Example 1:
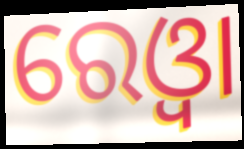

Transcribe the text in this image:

ରେଓ୍ବା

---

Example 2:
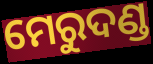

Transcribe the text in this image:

ମେରୁଦଣ୍ଡ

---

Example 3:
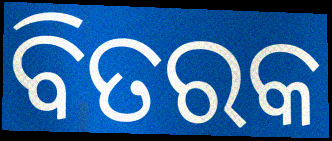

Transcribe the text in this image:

ବିତରକ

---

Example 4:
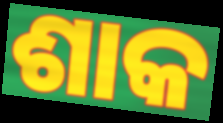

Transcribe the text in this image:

ଶାକ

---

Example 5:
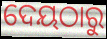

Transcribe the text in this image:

ଦେୟଠାରୁ